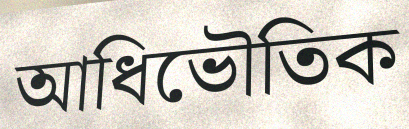
আধিভৌতিক